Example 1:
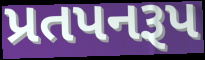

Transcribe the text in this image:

પ્રતપનરૂપ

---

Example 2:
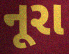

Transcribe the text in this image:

નૂરા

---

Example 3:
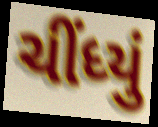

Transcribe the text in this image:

ચીંધ્યું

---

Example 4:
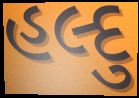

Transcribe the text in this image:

હલ્દુ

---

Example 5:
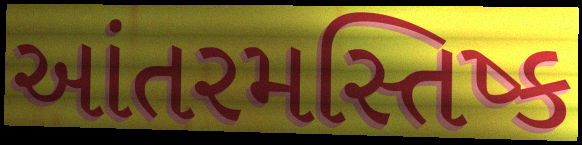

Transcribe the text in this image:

આંતરમસ્તિષ્ક